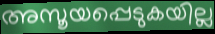
അസൂയപ്പെടുകയില്ല